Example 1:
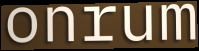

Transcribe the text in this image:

onrum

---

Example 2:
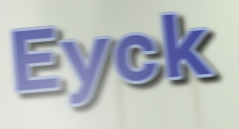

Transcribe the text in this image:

Eyck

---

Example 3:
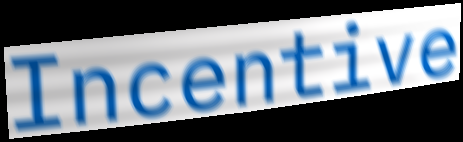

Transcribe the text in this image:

Incentive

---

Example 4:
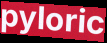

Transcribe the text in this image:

pyloric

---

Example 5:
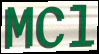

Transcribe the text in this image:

MCl